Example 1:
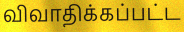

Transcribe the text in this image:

விவாதிக்கப்பட்ட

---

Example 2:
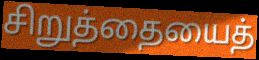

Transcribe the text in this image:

சிறுத்தையைத்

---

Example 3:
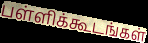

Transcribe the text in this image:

பள்ளிக்கூடங்கள்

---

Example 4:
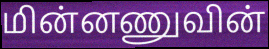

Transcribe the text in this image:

மின்னணுவின்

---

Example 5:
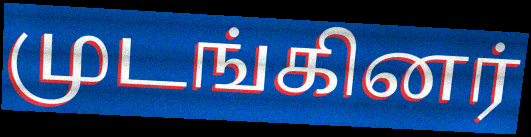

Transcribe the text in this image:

முடங்கினர்